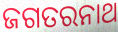
ଜଗତରନାଥ